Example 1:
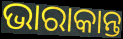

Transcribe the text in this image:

ଭାରାକାନ୍ତ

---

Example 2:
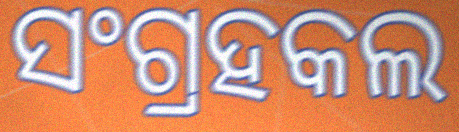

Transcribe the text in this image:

ସଂଗ୍ରହକଲ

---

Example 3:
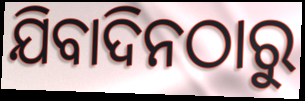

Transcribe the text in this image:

ଯିବାଦିନଠାରୁ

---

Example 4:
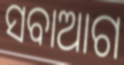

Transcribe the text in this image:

ସବାଆଗ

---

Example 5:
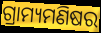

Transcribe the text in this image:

ଗ୍ରାମ୍ୟମଣିଷର